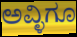
ಅವ್ಳಿಗೂ